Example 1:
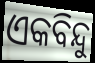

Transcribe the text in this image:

ଏକବିନ୍ଦୁ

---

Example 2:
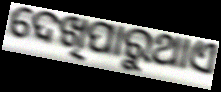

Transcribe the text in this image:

ଦେଖିପାରୁଥାଏ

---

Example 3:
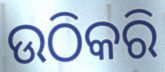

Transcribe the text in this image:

ଉଠିକରି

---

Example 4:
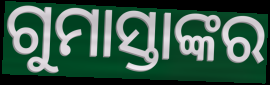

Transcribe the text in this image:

ଗୁମାସ୍ତାଙ୍କର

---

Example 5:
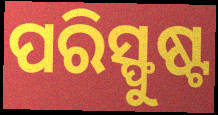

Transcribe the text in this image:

ପରିସ୍ଫୁଷ୍ଟ